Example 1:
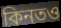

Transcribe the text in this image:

কিনতও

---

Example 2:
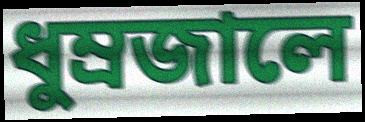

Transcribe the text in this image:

ধুম্রজালে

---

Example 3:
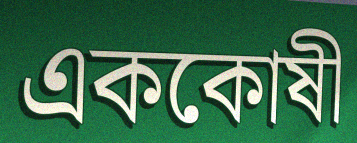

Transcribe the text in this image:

এককোষী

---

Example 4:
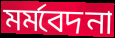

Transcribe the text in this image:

মর্মবেদনা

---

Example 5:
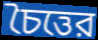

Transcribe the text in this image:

চৈত্তের